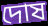
দোষ